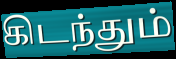
கிடந்தும்